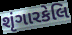
શૃંગારકેલિ